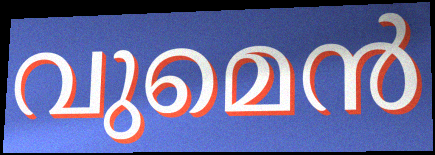
വുമെൻ